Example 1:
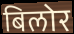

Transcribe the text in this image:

बिलोर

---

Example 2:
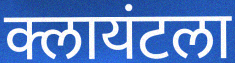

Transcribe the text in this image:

क्लायंटला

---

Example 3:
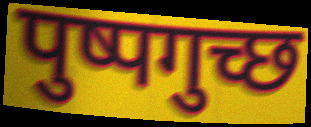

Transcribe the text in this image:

पुष्पगुच्छ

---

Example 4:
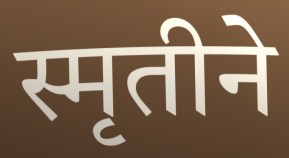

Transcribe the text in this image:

स्मृतीने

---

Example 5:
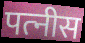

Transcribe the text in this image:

पत्‍नीस